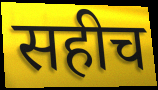
सहीच